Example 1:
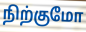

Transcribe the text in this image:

நிற்குமோ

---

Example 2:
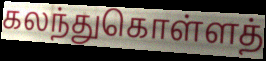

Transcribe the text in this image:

கலந்துகொள்ளத்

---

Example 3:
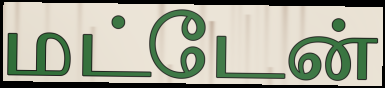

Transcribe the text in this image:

மட்டேன்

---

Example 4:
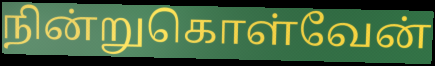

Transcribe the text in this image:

நின்றுகொள்வேன்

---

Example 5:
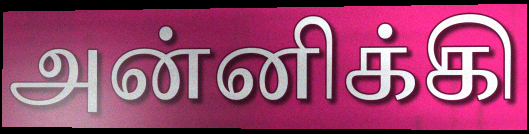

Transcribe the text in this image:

அன்னிக்கி